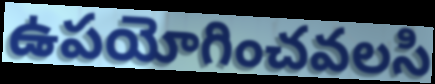
ఉపయోగించవలసి